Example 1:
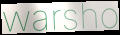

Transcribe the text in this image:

warsho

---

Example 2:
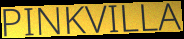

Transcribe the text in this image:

PINKVILLA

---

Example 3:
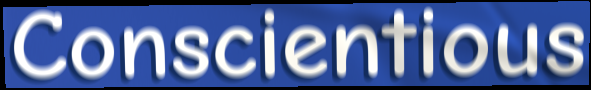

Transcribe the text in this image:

Conscientious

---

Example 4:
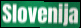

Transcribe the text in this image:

Slovenija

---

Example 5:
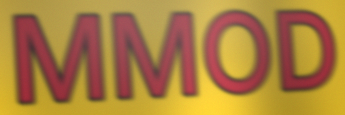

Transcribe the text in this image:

MMOD